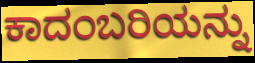
ಕಾದಂಬರಿಯನ್ನು